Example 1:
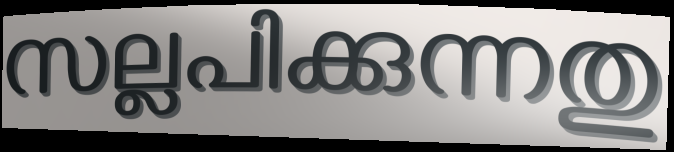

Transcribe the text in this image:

സല്ലപിക്കുന്നതു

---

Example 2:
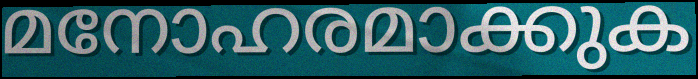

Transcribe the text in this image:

മനോഹരമാക്കുക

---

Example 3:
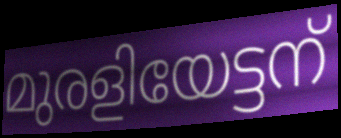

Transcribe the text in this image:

മുരളിയേട്ടന്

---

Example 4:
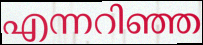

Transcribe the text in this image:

എന്നറിഞ്ഞ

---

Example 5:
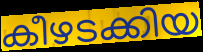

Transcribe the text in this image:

കീഴടക്കിയ